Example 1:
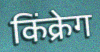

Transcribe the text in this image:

किंक्रेग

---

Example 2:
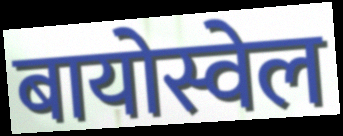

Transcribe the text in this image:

बायोस्वेल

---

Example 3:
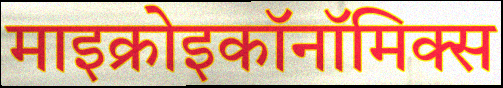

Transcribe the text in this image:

माइक्रोइकॉनॉमिक्स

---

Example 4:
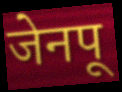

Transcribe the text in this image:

जेनपू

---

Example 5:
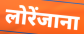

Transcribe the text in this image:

लोरेंजाना